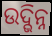
ଉଦ୍ଭିନ୍ନ